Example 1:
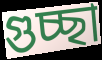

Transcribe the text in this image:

গুচ্ছা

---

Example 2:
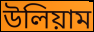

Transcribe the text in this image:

উলিয়াম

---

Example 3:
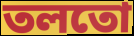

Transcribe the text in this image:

তলতো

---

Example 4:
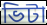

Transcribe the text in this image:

ভিটা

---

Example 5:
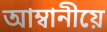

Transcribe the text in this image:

আম্বানীয়ে